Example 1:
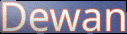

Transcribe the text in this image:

Dewan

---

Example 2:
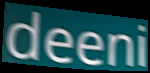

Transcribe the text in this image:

deeni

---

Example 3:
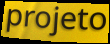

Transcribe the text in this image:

projeto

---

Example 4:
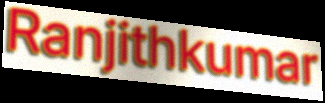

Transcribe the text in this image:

Ranjithkumar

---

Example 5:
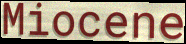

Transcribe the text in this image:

Miocene